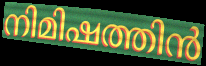
നിമിഷത്തിൻ